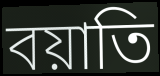
বয়াতি